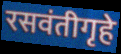
रसवंतीगृहे